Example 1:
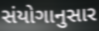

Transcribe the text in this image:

સંયોગાનુસાર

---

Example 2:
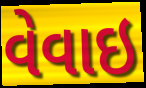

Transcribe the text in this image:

વેવાઇ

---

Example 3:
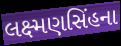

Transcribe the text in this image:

લક્ષ્મણસિંહના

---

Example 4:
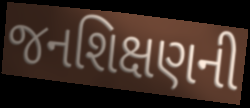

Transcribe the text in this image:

જનશિક્ષણની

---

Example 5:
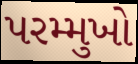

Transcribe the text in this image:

પરમ્મુખો